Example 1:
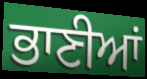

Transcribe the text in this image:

ਭਾਣੀਆਂ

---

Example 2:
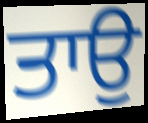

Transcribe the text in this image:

ਤਾਉ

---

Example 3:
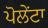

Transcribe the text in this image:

ਪੋਲੇਂਟਾ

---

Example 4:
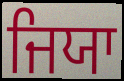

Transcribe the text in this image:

ਜਿਯਾ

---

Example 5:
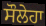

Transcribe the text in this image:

ਸੌਲੇਹਾ